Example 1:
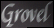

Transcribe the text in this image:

Grovel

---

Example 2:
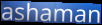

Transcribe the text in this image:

ashaman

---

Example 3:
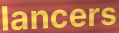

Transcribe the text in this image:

lancers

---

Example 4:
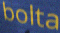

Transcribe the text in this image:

bolta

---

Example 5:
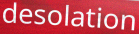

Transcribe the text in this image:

desolation